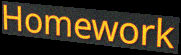
Homework